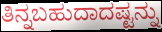
ತಿನ್ನಬಹುದಾದಷ್ಟನ್ನು